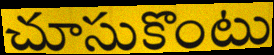
చూసుకొంటు